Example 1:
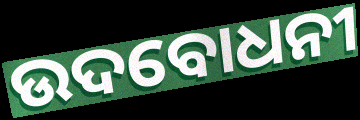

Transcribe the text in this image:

ଉଦବୋଧନୀ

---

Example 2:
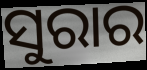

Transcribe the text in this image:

ସୁରାର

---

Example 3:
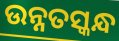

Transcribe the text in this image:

ଉନ୍ନତସ୍କନ୍ଧ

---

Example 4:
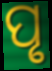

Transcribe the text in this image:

ପୃ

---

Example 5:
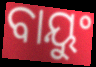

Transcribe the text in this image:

ବାୟୁଂ